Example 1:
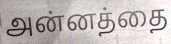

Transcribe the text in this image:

அன்னத்தை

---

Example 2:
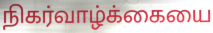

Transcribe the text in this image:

நிகர்வாழ்க்கையை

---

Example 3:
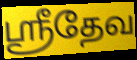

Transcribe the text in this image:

ஸ்ரீதேவ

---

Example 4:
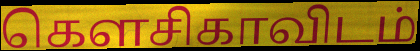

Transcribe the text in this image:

கௌசிகாவிடம்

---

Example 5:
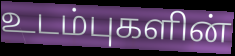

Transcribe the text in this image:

உடம்புகளின்